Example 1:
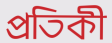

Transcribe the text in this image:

প্ৰতিকী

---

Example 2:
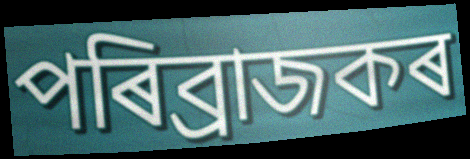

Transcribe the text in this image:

পৰিব্ৰাজকৰ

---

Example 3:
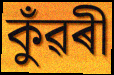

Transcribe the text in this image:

কুঁৱৰী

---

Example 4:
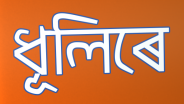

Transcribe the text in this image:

ধূলিৰে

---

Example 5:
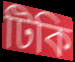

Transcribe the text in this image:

টিকি